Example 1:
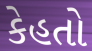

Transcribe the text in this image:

કેહતો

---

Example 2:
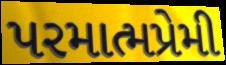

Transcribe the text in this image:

પરમાત્મપ્રેમી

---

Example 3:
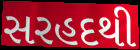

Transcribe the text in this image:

સરહદથી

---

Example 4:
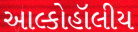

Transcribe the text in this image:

આલ્કોહૉલીય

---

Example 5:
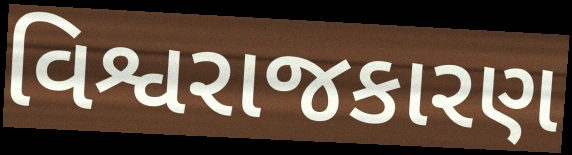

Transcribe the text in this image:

વિશ્વરાજકારણ